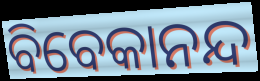
ବିବେକାନନ୍ଦ